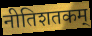
नीतिशतकम्